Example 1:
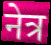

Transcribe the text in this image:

नेत्र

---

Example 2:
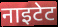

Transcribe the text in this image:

नाइटेट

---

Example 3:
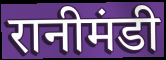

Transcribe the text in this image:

रानीमंडी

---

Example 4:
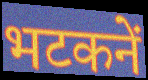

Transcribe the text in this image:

भटकनें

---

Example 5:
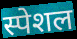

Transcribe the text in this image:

स्पेशल